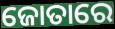
ଜୋତାରେ